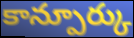
కాన్పూర్కు